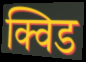
क्विड